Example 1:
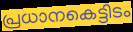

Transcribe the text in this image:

പ്രധാനകെട്ടിടം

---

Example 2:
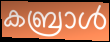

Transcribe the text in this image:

കബ്രാൾ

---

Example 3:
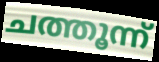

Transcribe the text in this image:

ചത്തൂന്ന്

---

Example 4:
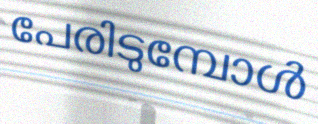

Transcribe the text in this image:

പേരിടുമ്പോൾ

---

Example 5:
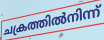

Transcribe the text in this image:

ചക്രത്തിൽനിന്ന്